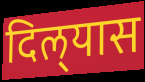
दिल्यास